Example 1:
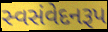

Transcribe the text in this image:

સ્વસંવેદનરૂપ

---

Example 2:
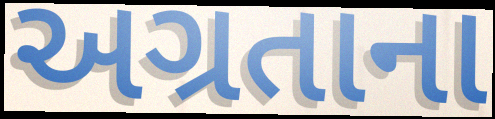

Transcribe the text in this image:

અગ્રતાના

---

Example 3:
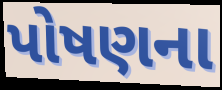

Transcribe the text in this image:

પોષણના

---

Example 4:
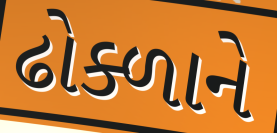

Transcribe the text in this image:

ઢોક્ળાને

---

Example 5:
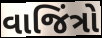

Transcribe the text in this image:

વાજિંત્રો